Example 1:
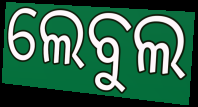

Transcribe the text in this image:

ଲେବୁଲ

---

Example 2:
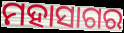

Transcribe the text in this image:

ମହାସାଗର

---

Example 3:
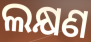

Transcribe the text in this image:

ଲକ୍ଷଣ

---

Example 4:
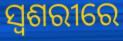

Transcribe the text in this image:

ସ୍ୱଶରୀରେ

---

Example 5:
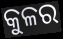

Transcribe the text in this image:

କୁଳର